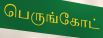
பெருங்கோட்